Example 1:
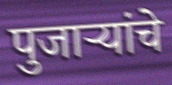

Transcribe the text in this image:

पुजाऱ्यांचे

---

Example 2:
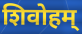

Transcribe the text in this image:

शिवोहम्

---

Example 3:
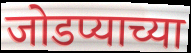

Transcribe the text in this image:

जोडप्याच्या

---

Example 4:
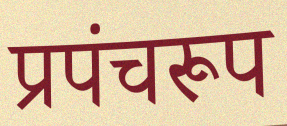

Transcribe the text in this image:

प्रपंचरूप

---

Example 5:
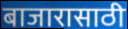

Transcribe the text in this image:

बाजारासाठी